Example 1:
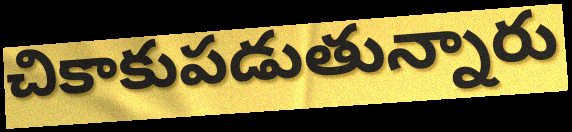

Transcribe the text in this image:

చికాకుపడుతున్నారు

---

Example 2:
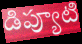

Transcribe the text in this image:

డిప్యూటి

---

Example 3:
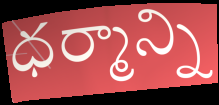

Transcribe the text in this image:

ధర్మాన్ని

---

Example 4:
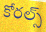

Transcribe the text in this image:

కోరల్స్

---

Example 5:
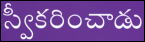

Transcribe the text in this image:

స్వీకరించాడు